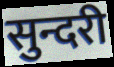
सुन्दरी